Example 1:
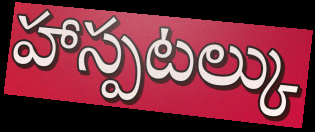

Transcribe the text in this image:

హాస్పటల్కు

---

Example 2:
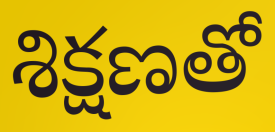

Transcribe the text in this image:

శిక్షణతో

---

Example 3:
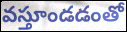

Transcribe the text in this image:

వస్తూండడంతో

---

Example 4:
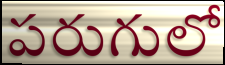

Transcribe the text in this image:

పరుగులో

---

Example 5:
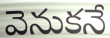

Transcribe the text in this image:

వెనుకనే